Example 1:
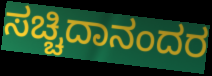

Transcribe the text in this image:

ಸಚ್ಚಿದಾನಂದರ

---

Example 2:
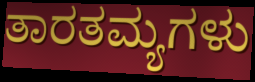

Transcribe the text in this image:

ತಾರತಮ್ಯಗಳು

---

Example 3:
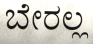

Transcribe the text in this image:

ಬೇರಲ್ಲ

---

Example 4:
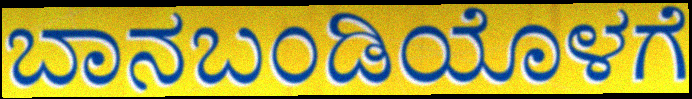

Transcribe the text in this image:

ಬಾನಬಂಡಿಯೊಳಗೆ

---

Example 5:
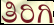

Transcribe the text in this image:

ತಿರಿಗಿ